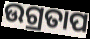
ଉଗ୍ରତାପ